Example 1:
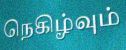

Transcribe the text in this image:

நெகிழ்வும்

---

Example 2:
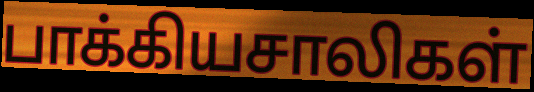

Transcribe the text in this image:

பாக்கியசாலிகள்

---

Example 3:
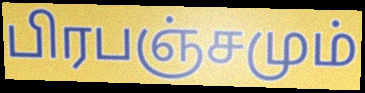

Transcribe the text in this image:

பிரபஞ்சமும்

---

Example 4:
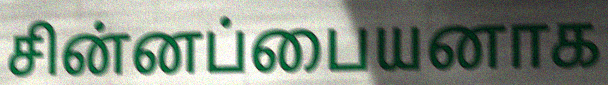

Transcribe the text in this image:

சின்னப்பையனாக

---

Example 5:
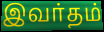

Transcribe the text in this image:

இவர்தம்